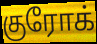
குரோக்